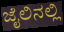
ಜೈಲಿನಲ್ಲಿ